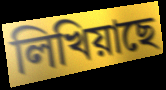
লিখিয়াছে